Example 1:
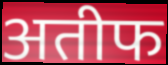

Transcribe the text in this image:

अतीफ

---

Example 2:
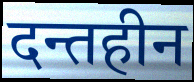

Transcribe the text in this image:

दन्तहीन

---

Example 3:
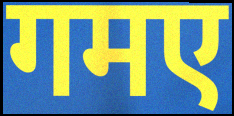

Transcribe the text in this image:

गमए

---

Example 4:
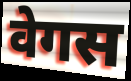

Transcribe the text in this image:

वेगस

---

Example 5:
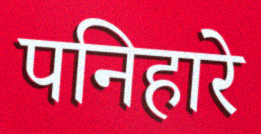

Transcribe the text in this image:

पनिहारे